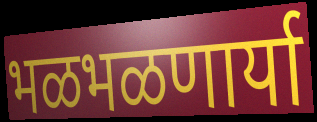
भळभळणार्या